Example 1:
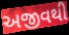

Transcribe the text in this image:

અજીવથી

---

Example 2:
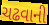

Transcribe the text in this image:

ચઢવાની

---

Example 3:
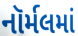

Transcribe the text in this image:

નૉર્મલમાં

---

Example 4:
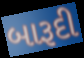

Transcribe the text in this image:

બારૂદી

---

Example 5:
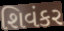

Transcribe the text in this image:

શિવંકર